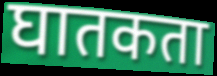
घातकता